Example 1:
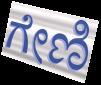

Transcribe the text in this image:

ಗೇಣಿ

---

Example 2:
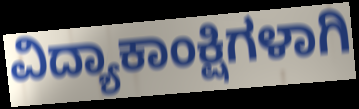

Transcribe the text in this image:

ವಿದ್ಯಾಕಾಂಕ್ಷಿಗಳಾಗಿ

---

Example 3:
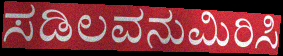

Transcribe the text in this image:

ಸಡಿಲವನುಮಿರಿಸಿ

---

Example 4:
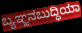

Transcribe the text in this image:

ಬ್ಯಞ್ಜನಬುದ್ಧಿಯಾ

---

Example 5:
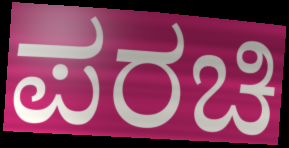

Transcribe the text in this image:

ಪರಚಿ